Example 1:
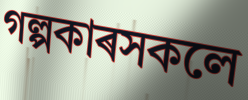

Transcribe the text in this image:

গল্পকাৰসকলে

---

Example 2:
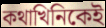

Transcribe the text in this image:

কথাখিনিকেই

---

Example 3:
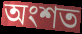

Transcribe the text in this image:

অংশত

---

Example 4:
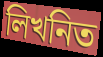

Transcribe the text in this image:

লিখনিত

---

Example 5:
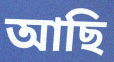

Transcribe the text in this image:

আছি